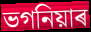
ভগনিয়াৰ